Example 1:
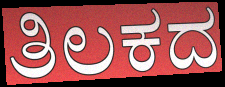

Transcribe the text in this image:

ತಿಲಕದ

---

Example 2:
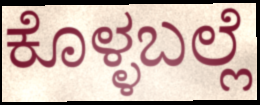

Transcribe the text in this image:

ಕೊಳ್ಳಬಲ್ಲೆ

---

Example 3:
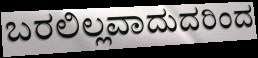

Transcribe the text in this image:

ಬರಲಿಲ್ಲವಾದುದರಿಂದ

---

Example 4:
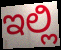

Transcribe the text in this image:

ಇಲ್ಲಿ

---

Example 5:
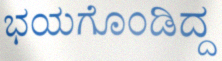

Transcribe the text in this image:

ಭಯಗೊಂಡಿದ್ದ